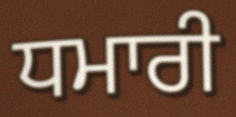
ਧਮਾਰੀ